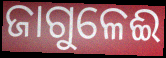
ଜାଗୁଳେଈ